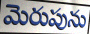
మెరుపును